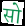
सो